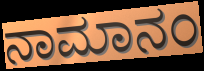
ನಾಮಾನಂ